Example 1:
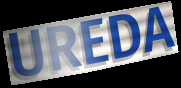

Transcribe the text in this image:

UREDA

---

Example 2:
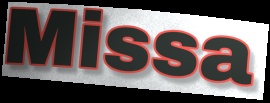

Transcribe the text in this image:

Missa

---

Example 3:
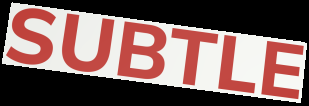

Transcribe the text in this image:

SUBTLE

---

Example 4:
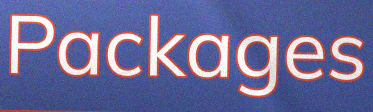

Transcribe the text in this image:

Packages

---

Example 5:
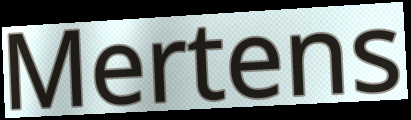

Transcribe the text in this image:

Mertens